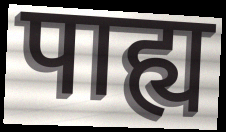
पाह्य